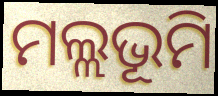
ମଲ୍ଲଭୂମି